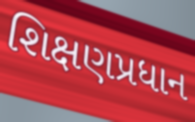
શિક્ષણપ્રધાન